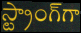
స్ట్రాంగ్‌గా